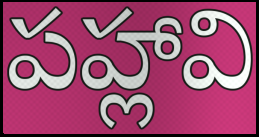
పహ్లావి